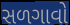
સળગાવો